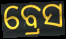
ବ୍ରେସ